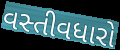
વસ્તીવધારો